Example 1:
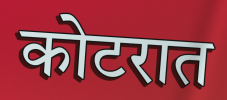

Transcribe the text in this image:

कोटरात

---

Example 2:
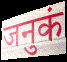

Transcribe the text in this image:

जनुकं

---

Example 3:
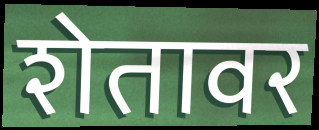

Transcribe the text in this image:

शेतावर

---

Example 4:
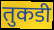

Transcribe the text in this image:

तुकडी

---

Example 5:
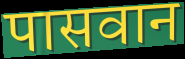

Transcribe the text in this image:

पासवान